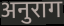
अनुराग